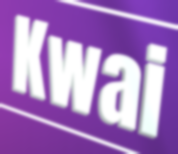
Kwai